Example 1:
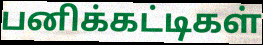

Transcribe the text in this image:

பனிக்கட்டிகள்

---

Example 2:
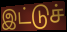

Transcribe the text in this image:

இட்டுச்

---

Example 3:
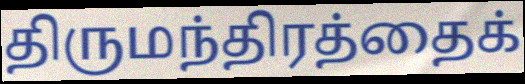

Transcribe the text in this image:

திருமந்திரத்தைக்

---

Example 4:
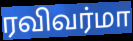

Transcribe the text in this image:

ரவிவர்மா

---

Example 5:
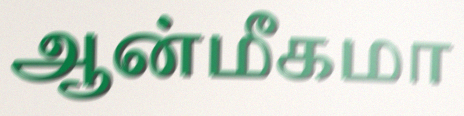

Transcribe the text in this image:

ஆன்மீகமா